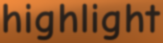
highlight